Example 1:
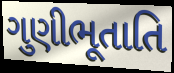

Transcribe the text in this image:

ગુણીભૂતાતિ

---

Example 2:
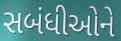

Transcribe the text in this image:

સબંધીઓને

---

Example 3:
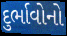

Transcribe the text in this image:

દુર્ભાવોનો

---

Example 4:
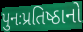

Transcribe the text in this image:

પુનઃપ્રતિષ્ઠાનો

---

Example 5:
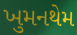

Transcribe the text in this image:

ખુમનથેમ